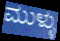
ಮುಳ್ಳು